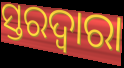
ସ୍ତରଦ୍ୱାରା